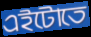
এইটোতে